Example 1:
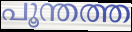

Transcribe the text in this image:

പൂന്തത്ത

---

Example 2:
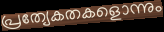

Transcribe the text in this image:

പ്രത്യേകതകളൊന്നും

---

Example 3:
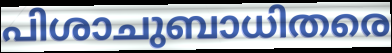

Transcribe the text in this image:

പിശാചുബാധിതരെ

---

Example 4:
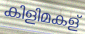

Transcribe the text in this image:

കിളിമകള്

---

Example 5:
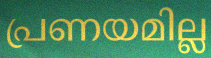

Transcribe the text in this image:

പ്രണയമില്ല